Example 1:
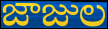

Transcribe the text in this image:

జాజుల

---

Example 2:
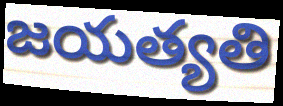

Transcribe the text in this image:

జయత్యతి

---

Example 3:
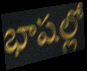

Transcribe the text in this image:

భాషల్లో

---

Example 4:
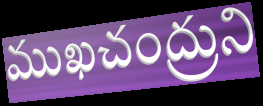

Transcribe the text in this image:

ముఖచంద్రుని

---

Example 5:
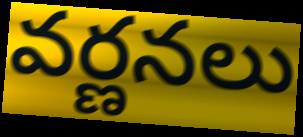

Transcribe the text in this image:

వర్ణనలు